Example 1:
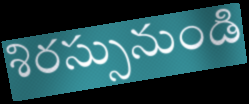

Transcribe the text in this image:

శిరస్సునుండి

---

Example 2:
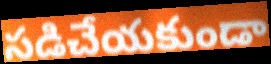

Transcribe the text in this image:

సడిచేయకుండా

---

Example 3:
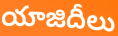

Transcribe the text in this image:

యాజిదీలు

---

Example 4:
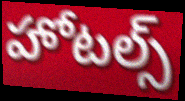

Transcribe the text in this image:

హోటల్స్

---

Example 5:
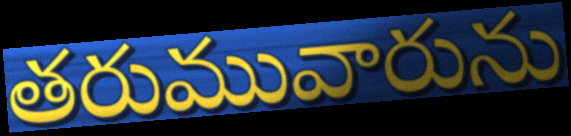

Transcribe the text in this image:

తరుమువారును